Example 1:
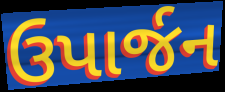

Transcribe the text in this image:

ઉપાર્જન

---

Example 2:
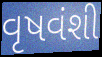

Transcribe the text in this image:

વૃષવંશી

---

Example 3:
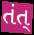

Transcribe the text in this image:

તંત્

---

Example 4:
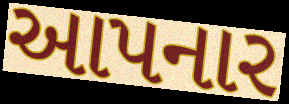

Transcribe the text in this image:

આપનાર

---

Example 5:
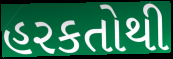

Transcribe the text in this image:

હરકતોથી